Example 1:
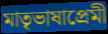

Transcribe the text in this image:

মাতৃভাষাপ্রেমী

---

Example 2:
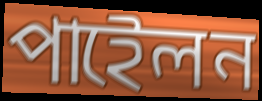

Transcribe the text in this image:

পাইেলন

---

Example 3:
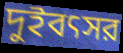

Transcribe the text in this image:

দুইবৎসর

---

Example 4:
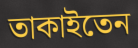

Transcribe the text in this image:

তাকাইতেন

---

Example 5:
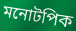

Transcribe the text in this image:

মনোটপিক